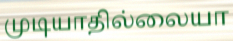
முடியாதில்லையா